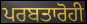
ਪਰਬਤਾਰੋਹੀ